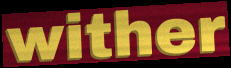
wither